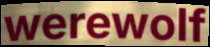
werewolf